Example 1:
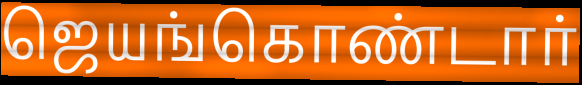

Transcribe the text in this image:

ஜெயங்கொண்டார்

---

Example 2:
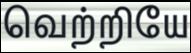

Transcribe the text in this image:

வெற்றியே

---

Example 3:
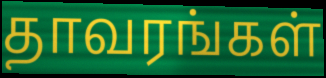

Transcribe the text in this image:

தாவரங்கள்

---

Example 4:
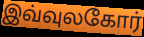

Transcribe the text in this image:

இவ்வுலகோர்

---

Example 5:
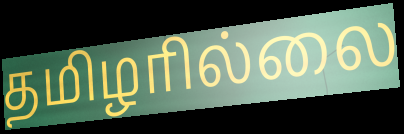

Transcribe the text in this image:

தமிழரில்லை